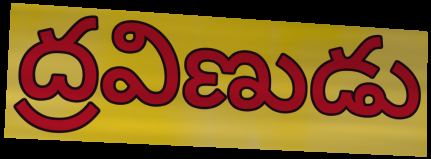
ద్రవిణుడు